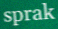
sprak